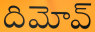
దిమోవ్